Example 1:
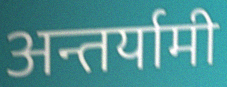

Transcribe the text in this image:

अन्‍तर्यामी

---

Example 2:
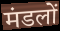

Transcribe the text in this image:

मंडलों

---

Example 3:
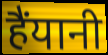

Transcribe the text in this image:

हैंयानी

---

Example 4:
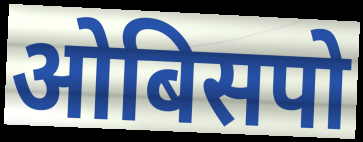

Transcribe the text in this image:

ओबिसपो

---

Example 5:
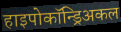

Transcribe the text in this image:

हाइपोकॉन्ड्रिअकल